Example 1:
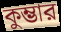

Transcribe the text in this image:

কুম্ভার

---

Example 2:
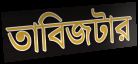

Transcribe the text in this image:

তাবিজটার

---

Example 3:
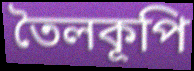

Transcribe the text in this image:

তৈলকূপি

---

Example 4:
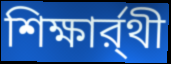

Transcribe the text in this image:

শিক্ষার্র্থী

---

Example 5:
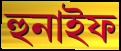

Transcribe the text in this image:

হুনাইফ